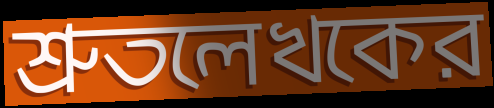
শ্রুতলেখকের